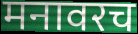
मनावरच